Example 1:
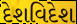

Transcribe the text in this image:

દેશવિદેશ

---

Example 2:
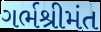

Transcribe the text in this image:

ગર્ભશ્રીમંત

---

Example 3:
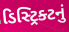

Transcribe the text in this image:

ડિસ્ટ્રિક્ટનું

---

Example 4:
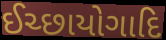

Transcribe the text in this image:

ઈચ્છાયોગાદિ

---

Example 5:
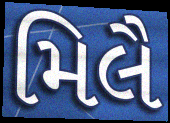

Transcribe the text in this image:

મિલૈ